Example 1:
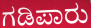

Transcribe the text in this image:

ಗಡಿಪಾರು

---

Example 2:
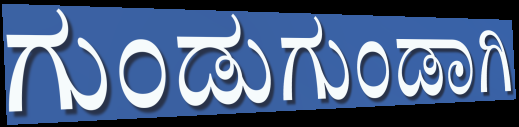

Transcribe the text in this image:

ಗುಂಡುಗುಂಡಾಗಿ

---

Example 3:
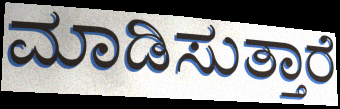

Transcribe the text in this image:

ಮಾಡಿಸುತ್ತಾರೆ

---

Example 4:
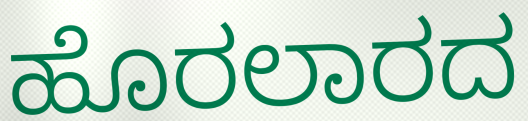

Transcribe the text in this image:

ಹೊರಲಾರದ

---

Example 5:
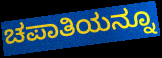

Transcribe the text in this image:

ಚಪಾತಿಯನ್ನೂ